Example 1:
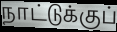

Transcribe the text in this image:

நாட்டுக்குப்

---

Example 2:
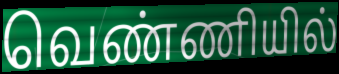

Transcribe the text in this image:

வெண்ணியில்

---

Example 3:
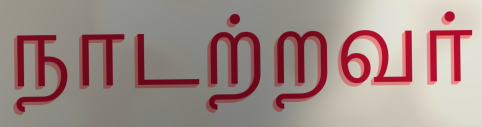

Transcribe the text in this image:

நாடற்றவர்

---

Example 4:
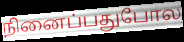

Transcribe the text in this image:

நினைப்பதுபோல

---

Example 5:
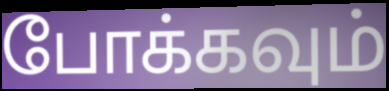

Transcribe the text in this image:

போக்கவும்